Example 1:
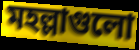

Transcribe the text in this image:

মহল্লাগুলো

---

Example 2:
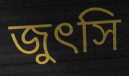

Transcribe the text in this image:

জুৎসি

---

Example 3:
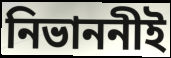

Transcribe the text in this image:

নিভাননীই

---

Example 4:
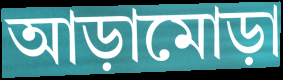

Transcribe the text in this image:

আড়ামোড়া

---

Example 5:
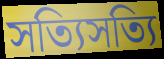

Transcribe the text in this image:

সত্যিসত্যি